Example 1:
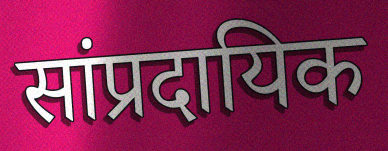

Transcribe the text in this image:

सांप्रदायिक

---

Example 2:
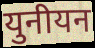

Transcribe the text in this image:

युनीयन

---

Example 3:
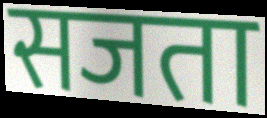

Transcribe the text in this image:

सजता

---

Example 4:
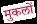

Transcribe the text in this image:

मुकलों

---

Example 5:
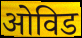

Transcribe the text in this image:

ओविड